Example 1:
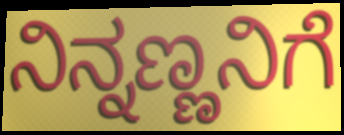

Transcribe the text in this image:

ನಿನ್ನಣ್ಣನಿಗೆ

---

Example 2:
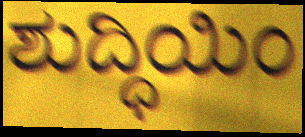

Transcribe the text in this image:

ಶುದ್ಧಿಯಿಂ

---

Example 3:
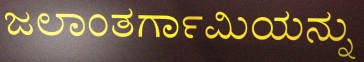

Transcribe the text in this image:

ಜಲಾಂತರ್ಗಾಮಿಯನ್ನು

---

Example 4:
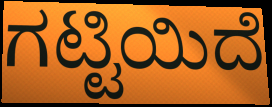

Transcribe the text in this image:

ಗಟ್ಟಿಯಿದೆ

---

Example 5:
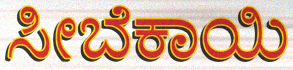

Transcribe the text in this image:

ಸೀಬೆಕಾಯಿ